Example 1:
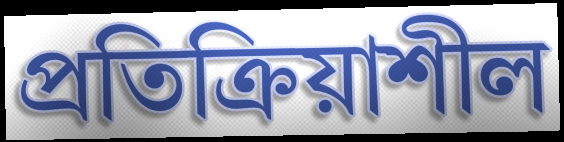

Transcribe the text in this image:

প্রতিক্রিয়াশীল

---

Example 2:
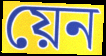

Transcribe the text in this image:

য়েন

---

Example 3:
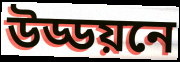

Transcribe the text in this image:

উড্ডয়নে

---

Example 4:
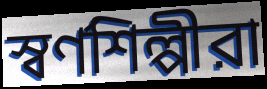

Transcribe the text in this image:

স্বর্ণশিল্পীরা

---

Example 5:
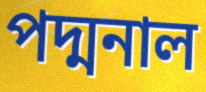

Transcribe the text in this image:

পদ্মনাল